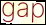
gap